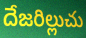
దేజరిల్లుచు